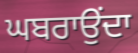
ਘਬਰਾਉਂਦਾ